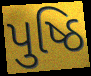
પુષ્ઠિ